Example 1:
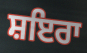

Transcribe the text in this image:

ਸ਼ਇਰਾ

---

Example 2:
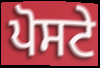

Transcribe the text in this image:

ਪੋਸਟੇ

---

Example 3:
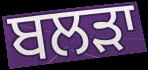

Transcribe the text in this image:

ਬਲੜਾ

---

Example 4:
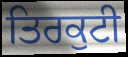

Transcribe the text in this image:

ਤਿਰਕੁਟੀ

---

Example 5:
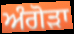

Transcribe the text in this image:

ਅੰਗੋੜਾ